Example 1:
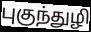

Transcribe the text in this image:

புகுந்துழி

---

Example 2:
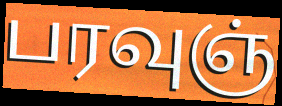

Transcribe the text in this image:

பரவுஞ்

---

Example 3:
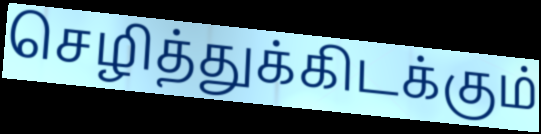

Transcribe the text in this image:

செழித்துக்கிடக்கும்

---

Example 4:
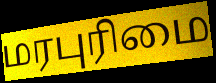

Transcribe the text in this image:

மரபுரிமை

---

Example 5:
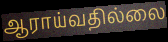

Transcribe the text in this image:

ஆராய்வதில்லை